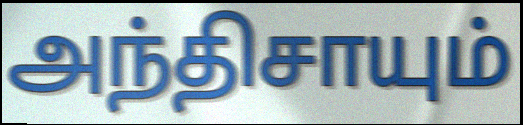
அந்திசாயும்